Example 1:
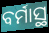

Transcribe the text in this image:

ବର୍ମାସ୍ଥ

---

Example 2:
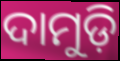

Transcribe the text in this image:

ଦାମୁଡ଼ି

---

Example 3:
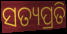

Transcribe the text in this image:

ସତ୍ୟପ୍ରତି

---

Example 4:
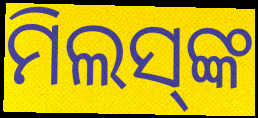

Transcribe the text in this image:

ମିଲସ୍‍ଙ୍କ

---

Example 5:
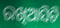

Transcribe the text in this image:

ରଖିଆସିଚି